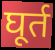
घूर्त